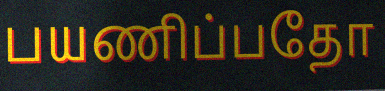
பயணிப்பதோ